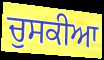
ਚੁਸਕੀਆ